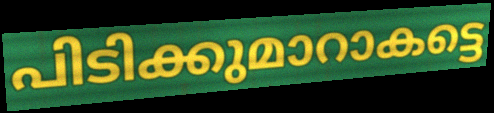
പിടിക്കുമാറാകട്ടെ